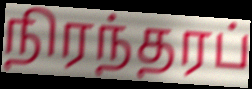
நிரந்தரப்